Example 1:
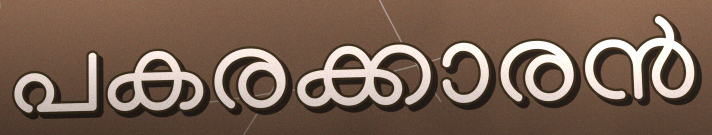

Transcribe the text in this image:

പകരക്കാരൻ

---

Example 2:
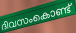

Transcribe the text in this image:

ദിവസംകൊണ്ട്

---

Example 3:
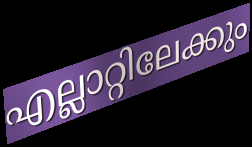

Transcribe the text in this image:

എല്ലാറ്റിലേക്കും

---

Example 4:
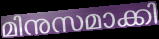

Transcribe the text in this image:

മിനുസമാക്കി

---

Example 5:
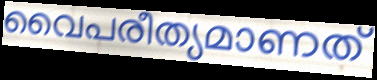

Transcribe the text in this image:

വൈപരീത്യമാണത്